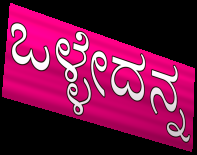
ಒಳ್ಳೇದನ್ನ